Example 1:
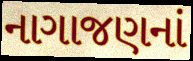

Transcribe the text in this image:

નાગાજણનાં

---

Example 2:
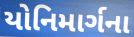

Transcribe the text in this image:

યોનિમાર્ગના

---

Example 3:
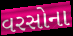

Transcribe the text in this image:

વરસોના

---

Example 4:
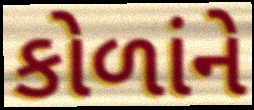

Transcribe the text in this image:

કોળાંને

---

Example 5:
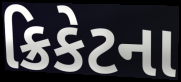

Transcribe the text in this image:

ક્રિકેટના